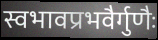
स्वभावप्रभवैर्गुणैः